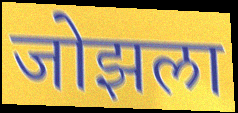
जोझला